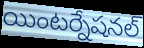
యింటర్నేషనల్